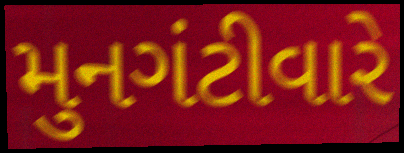
મુનગંટીવારે